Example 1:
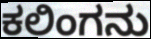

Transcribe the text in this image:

ಕಲಿಂಗನು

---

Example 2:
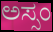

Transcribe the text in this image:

ಅಸ್ಸಂ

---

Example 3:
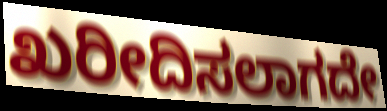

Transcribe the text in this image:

ಖರೀದಿಸಲಾಗದೇ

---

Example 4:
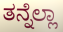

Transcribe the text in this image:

ತನ್ನೆಲ್ಲಾ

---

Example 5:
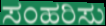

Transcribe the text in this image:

ಸಂಹರಿಸು